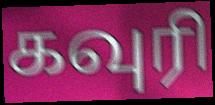
கவுரி